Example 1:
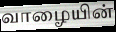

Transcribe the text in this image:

வாழையின்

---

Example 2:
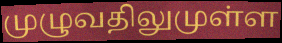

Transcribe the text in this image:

முழுவதிலுமுள்ள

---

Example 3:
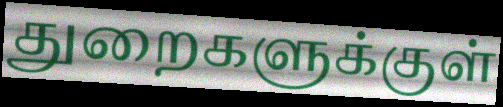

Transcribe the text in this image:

துறைகளுக்குள்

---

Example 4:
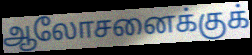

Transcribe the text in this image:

ஆலோசனைக்குக்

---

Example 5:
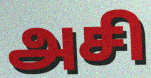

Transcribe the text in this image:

அசி